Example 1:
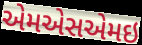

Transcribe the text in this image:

એમએસએમઇ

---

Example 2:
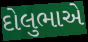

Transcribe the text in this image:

દોલુભાએ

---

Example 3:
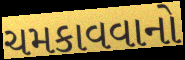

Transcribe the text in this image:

ચમકાવવાનો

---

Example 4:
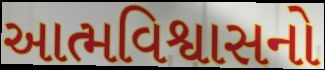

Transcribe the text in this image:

આત્મવિશ્વાસનો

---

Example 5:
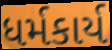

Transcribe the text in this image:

ધર્મકાર્ય